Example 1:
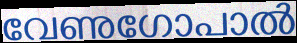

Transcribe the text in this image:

വേണുഗോപാൽ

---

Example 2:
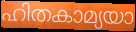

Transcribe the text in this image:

ഹിതകാമ്യയാ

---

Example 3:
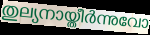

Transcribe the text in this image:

തുല്യനായ്തീർന്നുവോ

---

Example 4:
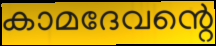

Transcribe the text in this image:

കാമദേവന്റെ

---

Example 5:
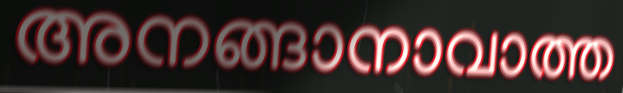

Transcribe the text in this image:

അനങ്ങാനാവാത്ത